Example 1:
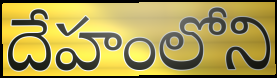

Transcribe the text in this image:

దేహంలోని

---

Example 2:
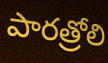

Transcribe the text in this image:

పారత్రోలి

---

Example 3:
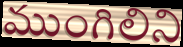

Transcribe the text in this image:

ముంగిలిని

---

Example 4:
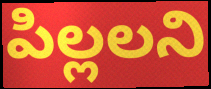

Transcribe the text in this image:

పిల్లలని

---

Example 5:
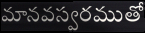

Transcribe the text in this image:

మానవస్వరముతో